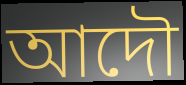
আদৌ